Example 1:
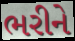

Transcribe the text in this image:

ભરીને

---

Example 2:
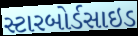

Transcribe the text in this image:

સ્ટારબોર્ડસાઇડ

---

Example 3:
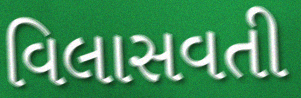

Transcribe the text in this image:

વિલાસવતી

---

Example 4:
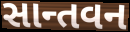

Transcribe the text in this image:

સાન્તવન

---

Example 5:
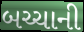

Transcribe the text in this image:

બચ્ચાની